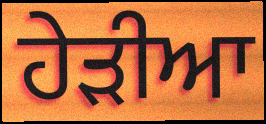
ਹੇੜੀਆ